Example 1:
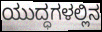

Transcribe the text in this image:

ಯುದ್ಧಗಳಲ್ಲಿನ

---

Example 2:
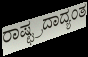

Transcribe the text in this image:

ರಾಷ್ಟ್ರದಾದ್ಯಂತ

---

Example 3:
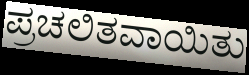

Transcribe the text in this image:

ಪ್ರಚಲಿತವಾಯಿತು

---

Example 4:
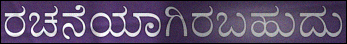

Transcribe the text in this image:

ರಚನೆಯಾಗಿರಬಹುದು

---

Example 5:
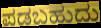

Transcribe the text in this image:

ಪಡಬಹುದು